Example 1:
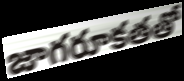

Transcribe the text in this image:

జాగరూకతతో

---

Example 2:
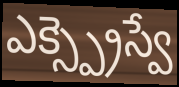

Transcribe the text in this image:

ఎక్స్ప్రెస్వే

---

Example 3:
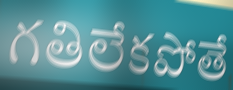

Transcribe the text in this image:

గతిలేకపోతే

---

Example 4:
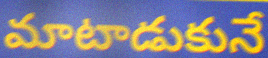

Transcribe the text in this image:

మాటాడుకునే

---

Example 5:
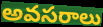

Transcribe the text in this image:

అవసరాలు